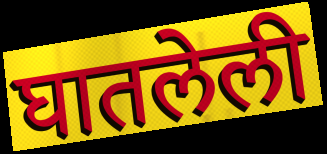
घातलेली